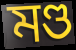
মণ্ড